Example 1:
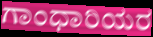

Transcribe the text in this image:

ಗಾಂಧಾರಿಯರ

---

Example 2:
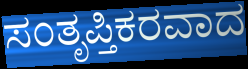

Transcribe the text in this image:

ಸಂತೃಪ್ತಿಕರವಾದ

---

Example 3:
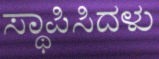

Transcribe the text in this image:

ಸ್ಥಾಪಿಸಿದಳು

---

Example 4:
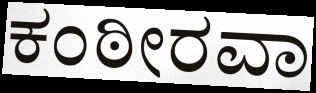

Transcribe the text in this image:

ಕಂಠೀರವಾ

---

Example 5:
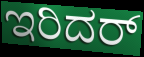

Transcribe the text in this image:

ಇರಿದರ್